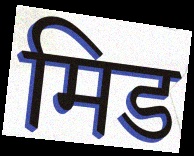
मिड